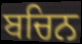
ਬਚਿਨ